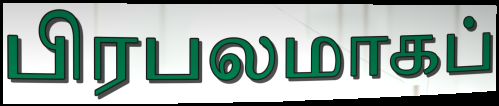
பிரபலமாகப்